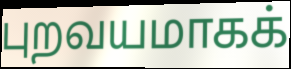
புறவயமாகக்